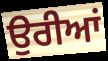
ਉਰੀਆਂ